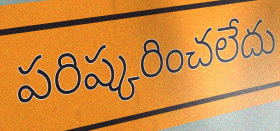
పరిష్కరించలేదు